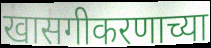
खासगीकरणाच्या